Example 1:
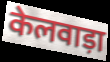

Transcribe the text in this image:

केलवाड़ा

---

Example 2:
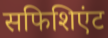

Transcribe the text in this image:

सफिशिएंट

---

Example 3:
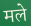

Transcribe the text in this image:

मले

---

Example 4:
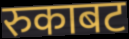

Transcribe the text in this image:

रुकाबट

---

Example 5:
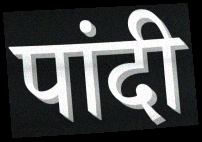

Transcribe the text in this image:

पांदी